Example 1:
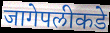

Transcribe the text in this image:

जागेपलीकडे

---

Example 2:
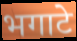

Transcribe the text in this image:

भगाटे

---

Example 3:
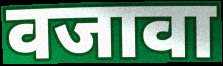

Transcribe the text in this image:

वजावा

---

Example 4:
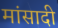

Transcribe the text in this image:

मांसादी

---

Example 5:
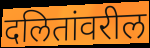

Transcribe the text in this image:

दलितांवरील